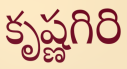
కృష్ణగిరి